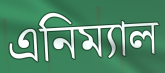
এনিম্যাল